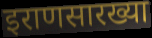
इराणसारख्या